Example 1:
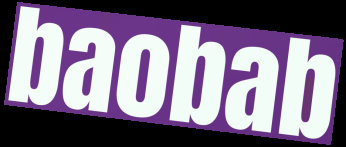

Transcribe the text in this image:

baobab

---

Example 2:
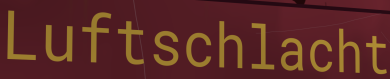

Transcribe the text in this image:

Luftschlacht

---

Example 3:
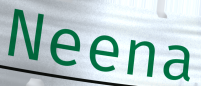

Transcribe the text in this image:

Neena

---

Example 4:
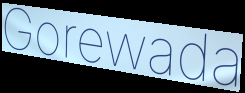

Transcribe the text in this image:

Gorewada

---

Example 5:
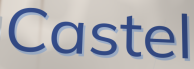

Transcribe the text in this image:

Castel